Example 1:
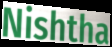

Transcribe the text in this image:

Nishtha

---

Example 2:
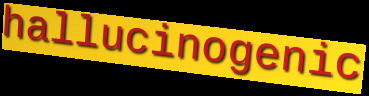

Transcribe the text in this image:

hallucinogenic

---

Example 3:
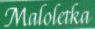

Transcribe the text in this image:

Maloletka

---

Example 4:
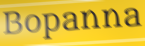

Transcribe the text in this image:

Bopanna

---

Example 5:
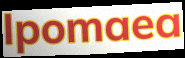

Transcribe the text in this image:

Ipomaea